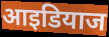
आइडियाज